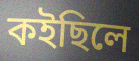
কইছিলে